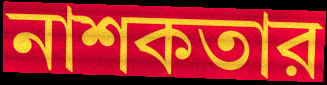
নাশকতার